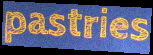
pastries